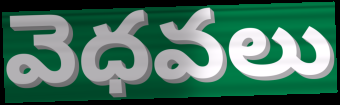
వెధవలు